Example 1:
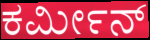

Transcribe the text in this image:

ಕರ್ಮೀನ್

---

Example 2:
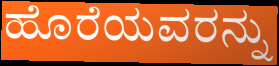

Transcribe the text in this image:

ಹೊರೆಯವರನ್ನು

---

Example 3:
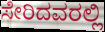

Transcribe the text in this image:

ಸೇರಿದವರಲ್ಲಿ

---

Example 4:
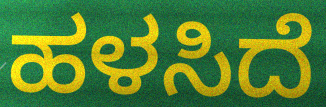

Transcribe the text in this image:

ಹಳಸಿದೆ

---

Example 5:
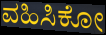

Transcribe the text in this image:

ವಹಿಸಿಕೋ